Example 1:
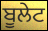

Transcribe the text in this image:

ਬੂਲੇਟ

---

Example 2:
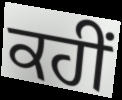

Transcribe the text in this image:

ਕਹੀਂ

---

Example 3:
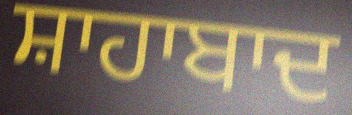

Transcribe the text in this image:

ਸ਼ਾਹਾਬਾਦ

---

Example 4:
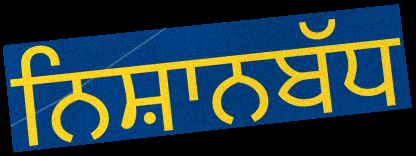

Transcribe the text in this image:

ਨਿਸ਼ਾਨਬੱਧ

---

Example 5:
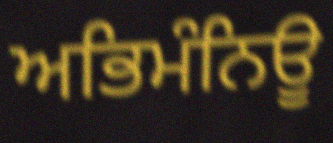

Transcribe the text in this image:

ਅਭਿਮੰਨਿਊ